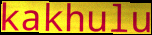
kakhulu